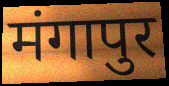
मंगापुर